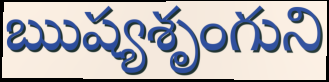
ఋష్యశృంగుని